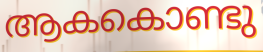
ആകകൊണ്ടു